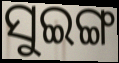
ସୁଇଙ୍ଗ